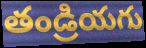
తండ్రియగు